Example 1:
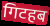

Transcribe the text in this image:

गिटहब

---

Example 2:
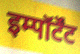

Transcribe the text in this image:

इम्पॉर्टेंट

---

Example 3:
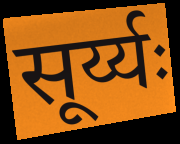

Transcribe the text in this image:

सूर्य्यः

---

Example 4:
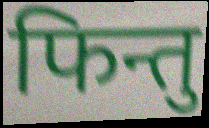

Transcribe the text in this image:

फिन्तु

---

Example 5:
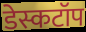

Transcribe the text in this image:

डेस्‍कटॉप